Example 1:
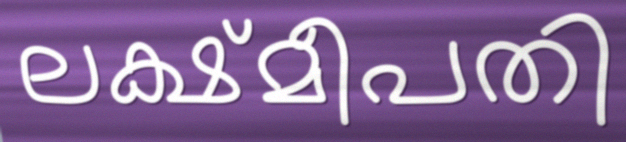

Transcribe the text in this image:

ലക്ഷ്മീപതി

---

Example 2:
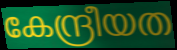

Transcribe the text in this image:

കേന്ദ്രീയത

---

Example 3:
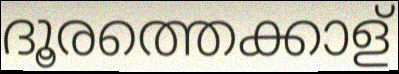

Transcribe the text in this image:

ദൂരത്തെക്കാള്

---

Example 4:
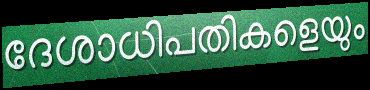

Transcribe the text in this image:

ദേശാധിപതികളെയും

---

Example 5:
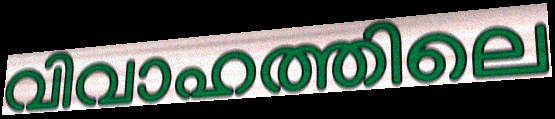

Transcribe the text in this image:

വിവാഹത്തിലെ